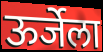
ऊर्जेला